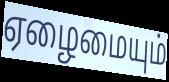
ஏழைமையும்